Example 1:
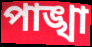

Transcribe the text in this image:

পাঙ্খা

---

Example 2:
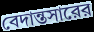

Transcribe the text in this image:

বেদান্তসারের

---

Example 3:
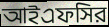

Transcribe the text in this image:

আইএফসির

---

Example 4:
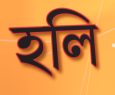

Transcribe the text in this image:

হলি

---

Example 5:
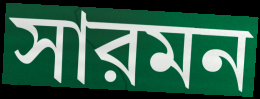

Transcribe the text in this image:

সারমন